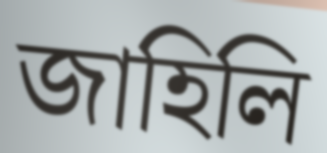
জাহিলি